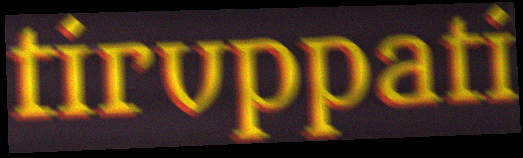
tiruppati